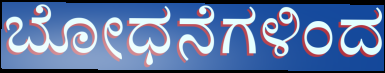
ಬೋಧನೆಗಳಿಂದ